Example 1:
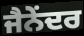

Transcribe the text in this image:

ਜੈਨੇਂਦਰ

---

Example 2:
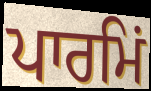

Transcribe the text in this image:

ਪਾਰਮਿਂ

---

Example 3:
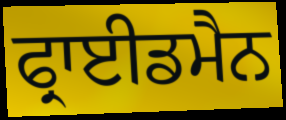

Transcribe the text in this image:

ਫ੍ਰਾਈਡਮੈਨ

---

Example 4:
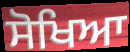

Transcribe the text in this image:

ਸੋਖਿਆ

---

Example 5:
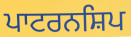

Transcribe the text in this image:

ਪਾਟਰਨਸ਼ਿਪ